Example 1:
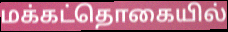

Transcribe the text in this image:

மக்கட்தொகையில்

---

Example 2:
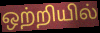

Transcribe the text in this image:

ஒற்றியில்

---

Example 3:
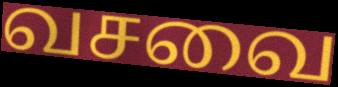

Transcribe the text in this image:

வசவை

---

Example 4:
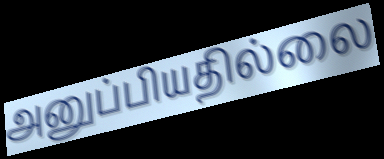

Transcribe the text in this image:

அனுப்பியதில்லை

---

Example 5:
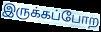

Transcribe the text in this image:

இருக்கப்போற